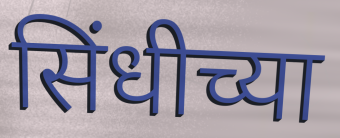
सिंधीच्या